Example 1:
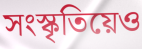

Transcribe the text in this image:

সংস্কৃতিয়েও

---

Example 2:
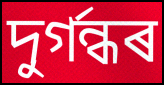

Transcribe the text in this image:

দুৰ্গন্ধৰ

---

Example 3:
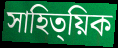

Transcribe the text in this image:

সাহিত্য়িক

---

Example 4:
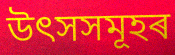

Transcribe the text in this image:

উৎসসমূহৰ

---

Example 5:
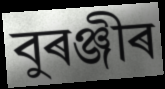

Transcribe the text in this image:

বুৰঞ্জীৰ